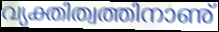
വ്യക്തിത്വത്തിനാണു്